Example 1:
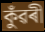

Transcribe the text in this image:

কুঁৱৰী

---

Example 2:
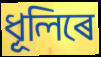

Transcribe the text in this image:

ধূলিৰে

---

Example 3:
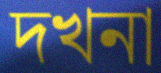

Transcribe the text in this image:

দখনা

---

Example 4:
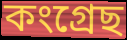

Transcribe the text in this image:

কংগ্ৰেছ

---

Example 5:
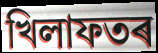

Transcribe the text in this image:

খিলাফতৰ